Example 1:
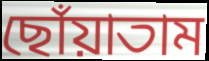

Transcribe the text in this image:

ছোঁয়াতাম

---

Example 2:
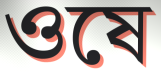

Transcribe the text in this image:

ওষে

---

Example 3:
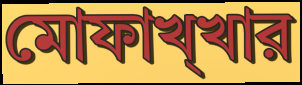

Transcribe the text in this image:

মোফাখ্খার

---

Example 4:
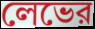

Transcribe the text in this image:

লেভের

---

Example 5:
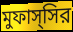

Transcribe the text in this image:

মুফাস্সির